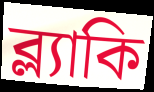
ব্ল্যাকি